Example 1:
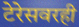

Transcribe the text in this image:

टेरेसवरही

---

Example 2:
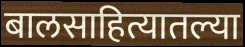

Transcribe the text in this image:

बालसाहित्यातल्या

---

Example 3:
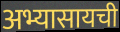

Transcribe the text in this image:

अभ्यासायची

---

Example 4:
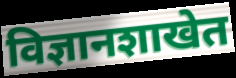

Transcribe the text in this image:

विज्ञानशाखेत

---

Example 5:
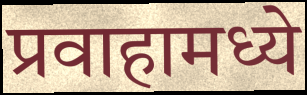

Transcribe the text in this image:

प्रवाहामध्ये